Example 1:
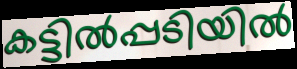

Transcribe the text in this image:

കട്ടിൽപ്പടിയിൽ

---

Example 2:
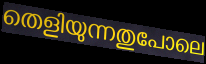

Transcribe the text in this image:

തെളിയുന്നതുപോലെ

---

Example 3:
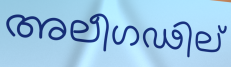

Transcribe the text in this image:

അലീഗഢില്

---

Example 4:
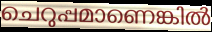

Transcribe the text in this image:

ചെറുപ്പമാണെങ്കിൽ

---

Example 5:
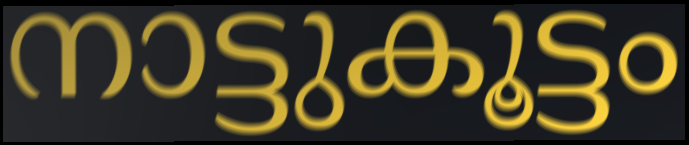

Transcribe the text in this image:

നാട്ടുകൂട്ടം